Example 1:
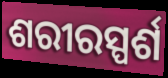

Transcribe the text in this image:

ଶରୀରସ୍ପର୍ଶ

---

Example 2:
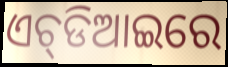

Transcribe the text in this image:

ଏଚ୍‌ଡିଆଇରେ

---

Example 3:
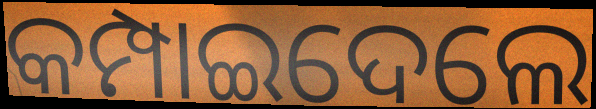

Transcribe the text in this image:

କମ୍ପାଇଦେଲେ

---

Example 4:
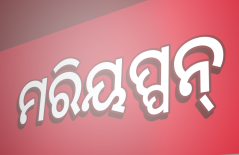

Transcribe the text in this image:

ମରିୟପ୍ପନ୍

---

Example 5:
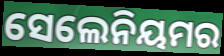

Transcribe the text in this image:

ସେଲେନିୟମର